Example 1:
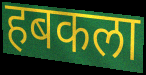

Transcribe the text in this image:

हबकला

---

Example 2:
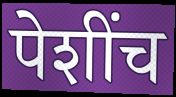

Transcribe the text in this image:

पेशींच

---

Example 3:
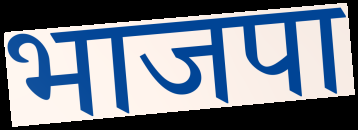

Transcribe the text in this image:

भाजपा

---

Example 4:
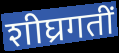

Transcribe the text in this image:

शीघ्रगतीं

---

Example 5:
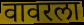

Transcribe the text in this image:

वावरला